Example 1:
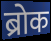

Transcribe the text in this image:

ब्रोक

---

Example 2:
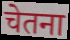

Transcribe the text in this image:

चेतना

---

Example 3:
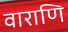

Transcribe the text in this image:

वाराणि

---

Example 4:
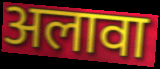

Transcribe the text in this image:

अलावा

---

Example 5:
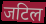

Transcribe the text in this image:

जटिल